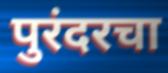
पुरंदरचा